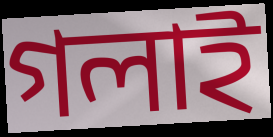
গলাই